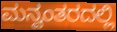
ಮನ್ವಂತರದಲ್ಲಿ